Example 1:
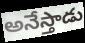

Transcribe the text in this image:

అనేస్తాడు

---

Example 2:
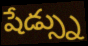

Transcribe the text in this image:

షేడ్స్ను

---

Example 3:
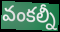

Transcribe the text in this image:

వంకల్నీ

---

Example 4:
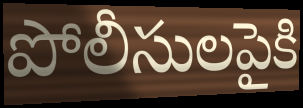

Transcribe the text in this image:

పోలీసులపైకి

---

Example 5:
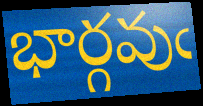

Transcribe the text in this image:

భార్గవుఁ